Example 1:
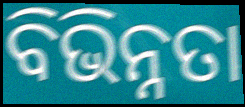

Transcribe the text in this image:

ବିଭିନ୍ନତା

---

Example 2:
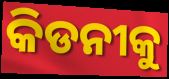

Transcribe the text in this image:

କିଡନୀକୁ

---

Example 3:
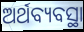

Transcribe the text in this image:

ଅର୍ଥବ୍ୟବସ୍ଥା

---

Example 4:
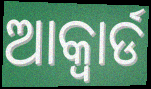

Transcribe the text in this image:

ଆକ୍ୱାର୍ଡ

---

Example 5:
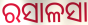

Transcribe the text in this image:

ରସାଳସା